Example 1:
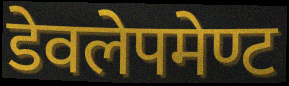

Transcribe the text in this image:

डेवलेपमेण्ट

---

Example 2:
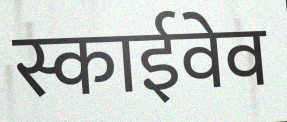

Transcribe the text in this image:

स्काईवेव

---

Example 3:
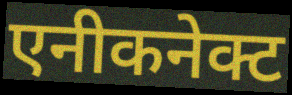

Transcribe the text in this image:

एनीकनेक्ट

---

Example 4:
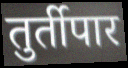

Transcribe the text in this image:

तुर्तीपार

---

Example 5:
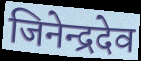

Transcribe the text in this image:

जिनेन्द्रदेव